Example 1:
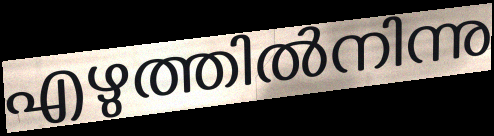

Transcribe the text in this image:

എഴുത്തിൽനിന്നു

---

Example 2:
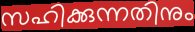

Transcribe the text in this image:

സഹിക്കുന്നതിനും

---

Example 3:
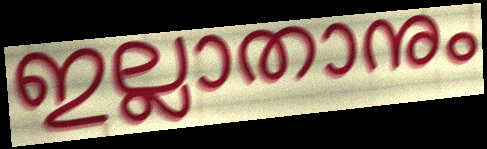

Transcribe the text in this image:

ഇല്ലാതാനും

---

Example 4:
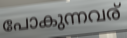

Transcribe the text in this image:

പോകുന്നവര്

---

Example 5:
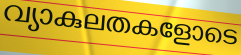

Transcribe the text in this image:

വ്യാകുലതകളോടെ